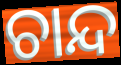
ଚାନ୍ଦ